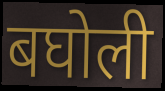
बघोली